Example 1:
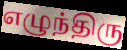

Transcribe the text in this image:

எழுந்திரு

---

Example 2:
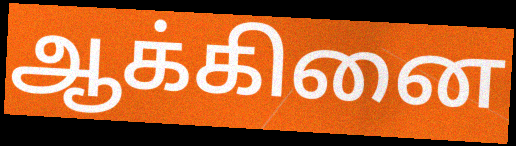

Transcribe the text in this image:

ஆக்கினை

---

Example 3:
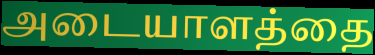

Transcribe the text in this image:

அடையாளத்தை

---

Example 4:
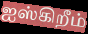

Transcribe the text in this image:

ஐஸ்கிறீம்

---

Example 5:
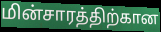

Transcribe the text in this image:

மின்சாரத்திற்கான